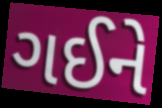
ગઈને